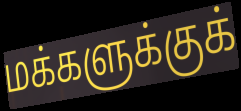
மக்களுக்குக்